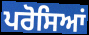
ਪਰੋਸਿਆਂ